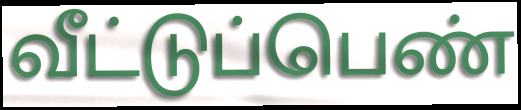
வீட்டுப்பெண்